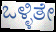
ಒಳ್ಳಿತೇ